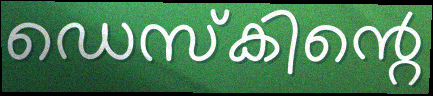
ഡെസ്കിന്റെ